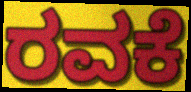
ರವಕೆ